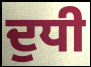
ਦੁਧੀ